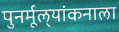
पुनर्मूल्यांकनाला